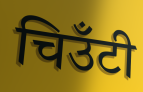
चिउँटी